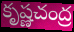
కృష్ణచంద్ర